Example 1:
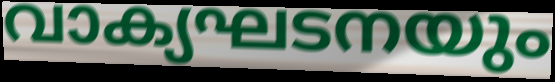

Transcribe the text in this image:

വാക്യഘടനയും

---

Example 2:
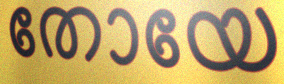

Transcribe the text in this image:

തോയേ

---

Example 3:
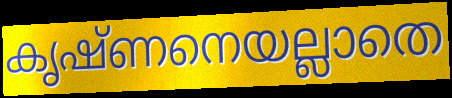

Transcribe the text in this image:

കൃഷ്ണനെയല്ലാതെ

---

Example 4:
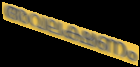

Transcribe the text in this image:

അവലക്ഷണം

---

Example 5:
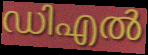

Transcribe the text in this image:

ഡിഎൽ